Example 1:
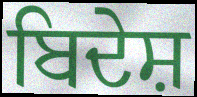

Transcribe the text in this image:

ਬਿਦੇਸ਼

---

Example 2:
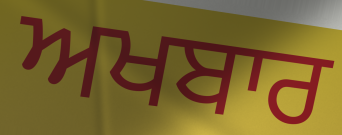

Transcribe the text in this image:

ਅਖਬਾਰ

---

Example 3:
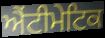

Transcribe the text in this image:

ਐਂਟੀਮੇਟਿਕ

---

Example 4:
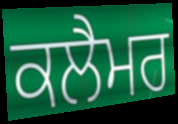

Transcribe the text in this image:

ਕਲੈਮਰ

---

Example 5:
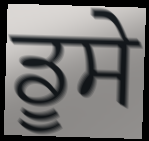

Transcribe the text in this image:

ਡੂਸੇ